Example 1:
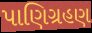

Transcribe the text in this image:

પાણિગ્રહણ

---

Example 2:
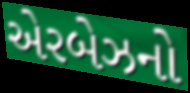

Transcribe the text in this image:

એરબેઝનો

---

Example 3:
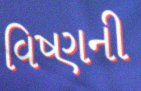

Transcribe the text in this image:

વિષ્ણની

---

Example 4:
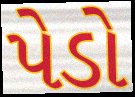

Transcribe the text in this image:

પેડો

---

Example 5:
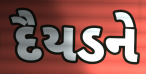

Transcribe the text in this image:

દૈયડને